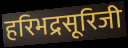
हरिभद्रसूरिजी